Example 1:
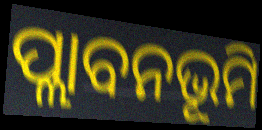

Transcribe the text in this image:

ପ୍ଲାବନଭୂମି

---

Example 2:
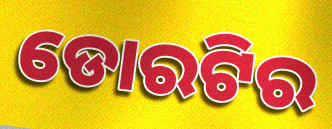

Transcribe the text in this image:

ଡୋରଟିର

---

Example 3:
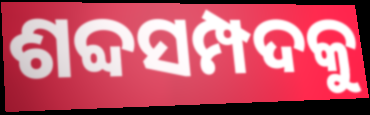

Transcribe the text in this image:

ଶବ୍ଦସମ୍ପଦକୁ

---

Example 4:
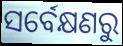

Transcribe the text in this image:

ସର୍ବେକ୍ଷଣରୁ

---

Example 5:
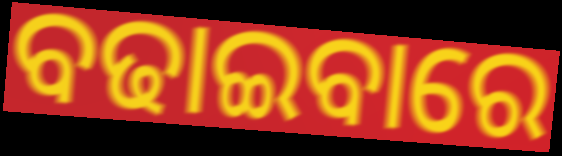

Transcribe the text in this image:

ବଢାଇବାରେ